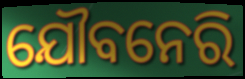
ଯୌବନେରି